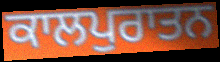
ਕਾਲਪੁਰਾਤਨ